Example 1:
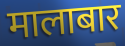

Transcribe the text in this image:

मालाबार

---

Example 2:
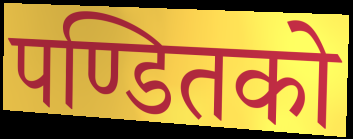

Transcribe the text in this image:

पण्डितको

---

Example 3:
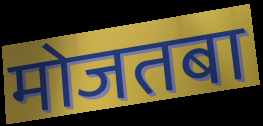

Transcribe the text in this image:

मोजतबा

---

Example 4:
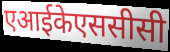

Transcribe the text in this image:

एआईकेएससीसी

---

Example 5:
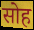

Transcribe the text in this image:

सोह